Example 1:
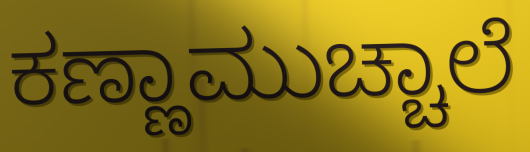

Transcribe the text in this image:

ಕಣ್ಣಾಮುಚ್ಚಾಲೆ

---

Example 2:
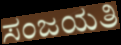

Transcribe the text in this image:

ಸಂಜಯತಿ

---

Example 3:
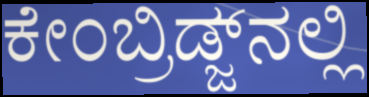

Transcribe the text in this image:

ಕೇಂಬ್ರಿಡ್ಜ್‌ನಲ್ಲಿ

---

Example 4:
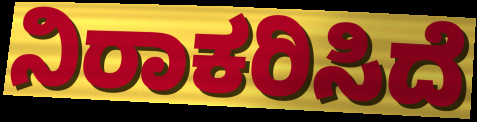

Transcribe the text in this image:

ನಿರಾಕರಿಸಿದೆ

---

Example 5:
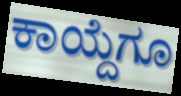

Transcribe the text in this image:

ಕಾಯ್ದೆಗೂ